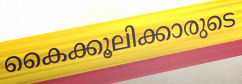
കൈക്കൂലിക്കാരുടെ